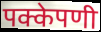
पक्केपणी